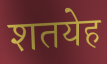
शतयेह